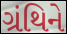
ગ્રંથિને